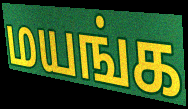
மயங்க